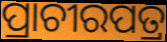
ପ୍ରାଚୀରପତ୍ର